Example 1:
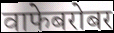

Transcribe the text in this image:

वाफेबरोबर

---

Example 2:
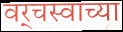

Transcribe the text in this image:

वर्चस्वाच्या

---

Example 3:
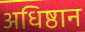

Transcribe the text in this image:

अधिष्ठान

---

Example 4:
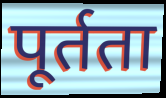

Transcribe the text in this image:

पूर्तता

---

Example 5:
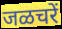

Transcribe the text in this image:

जळचरें